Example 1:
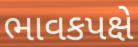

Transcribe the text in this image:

ભાવકપક્ષે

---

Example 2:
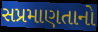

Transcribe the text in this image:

સપ્રમાણતાનો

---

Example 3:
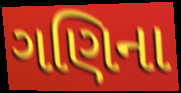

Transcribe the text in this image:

ગણિના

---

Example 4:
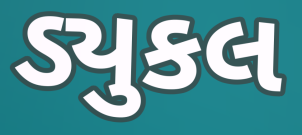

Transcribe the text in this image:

ડ્યુકલ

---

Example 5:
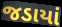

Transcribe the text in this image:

જડાયાં